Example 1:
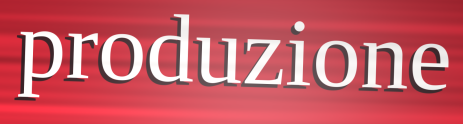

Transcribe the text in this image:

produzione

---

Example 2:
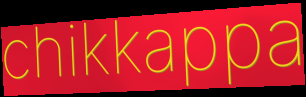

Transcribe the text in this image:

chikkappa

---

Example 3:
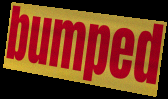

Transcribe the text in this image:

bumped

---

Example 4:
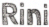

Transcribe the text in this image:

Rini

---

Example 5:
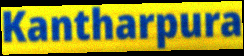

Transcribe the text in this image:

Kantharpura